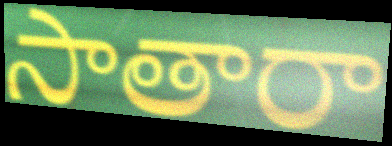
సాతారా